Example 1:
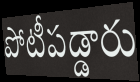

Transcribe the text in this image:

పోటీపడ్డారు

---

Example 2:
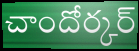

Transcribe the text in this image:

చాందోర్కర్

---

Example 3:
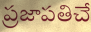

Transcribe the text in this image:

ప్రజాపతిచే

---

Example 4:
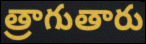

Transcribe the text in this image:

త్రాగుతారు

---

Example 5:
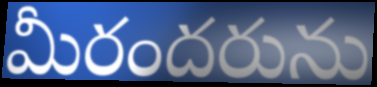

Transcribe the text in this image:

మీరందరును